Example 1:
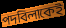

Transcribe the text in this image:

পদবিলাকেই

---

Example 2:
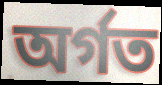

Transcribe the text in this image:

অৰ্গত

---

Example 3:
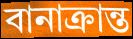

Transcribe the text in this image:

বানাক্ৰান্ত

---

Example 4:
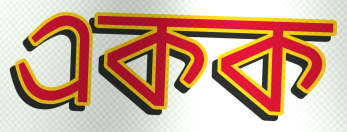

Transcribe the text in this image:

একক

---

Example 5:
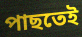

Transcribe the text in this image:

পাছতেই